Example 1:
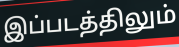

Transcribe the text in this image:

இப்படத்திலும்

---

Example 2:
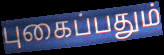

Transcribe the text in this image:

புகைப்பதும்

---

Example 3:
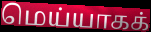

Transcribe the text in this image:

மெய்யாகக்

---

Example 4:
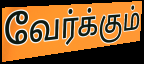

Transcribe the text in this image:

வேர்க்கும்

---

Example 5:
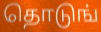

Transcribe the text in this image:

தொடுங்